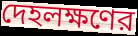
দেহলক্ষণের